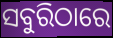
ସବୁରିଠାରେ